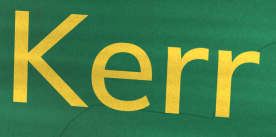
Kerr